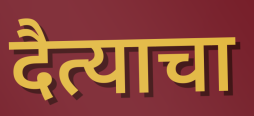
दैत्याचा